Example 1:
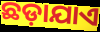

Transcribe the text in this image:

ଛଡ଼ାଯାଏ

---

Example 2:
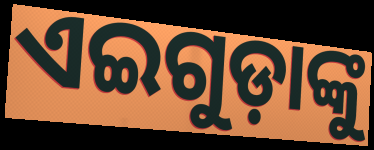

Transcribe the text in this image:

ଏଇଗୁଡ଼ାଙ୍କୁ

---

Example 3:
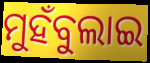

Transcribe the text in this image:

ମୁହଁବୁଲାଇ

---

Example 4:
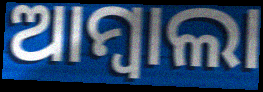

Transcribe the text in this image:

ଆମ୍ବାଲା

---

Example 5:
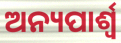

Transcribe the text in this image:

ଅନ୍ୟପାର୍ଶ୍ୱ